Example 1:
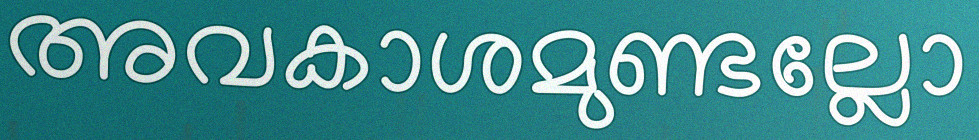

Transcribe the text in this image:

അവകാശമുണ്ടല്ലോ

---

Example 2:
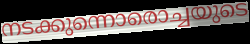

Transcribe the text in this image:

നടക്കുന്നൊരൊച്ചയുടെ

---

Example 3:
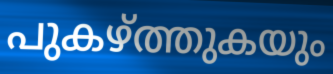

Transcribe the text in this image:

പുകഴ്ത്തുകയും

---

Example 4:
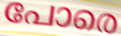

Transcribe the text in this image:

പോരെ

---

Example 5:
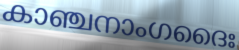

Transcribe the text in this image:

കാഞ്ചനാംഗദൈഃ